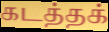
கடத்தக்